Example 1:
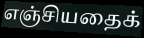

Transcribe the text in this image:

எஞ்சியதைக்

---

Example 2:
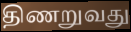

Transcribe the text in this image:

திணறுவது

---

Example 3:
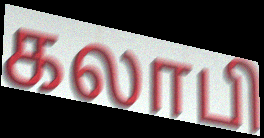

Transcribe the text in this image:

கலாபி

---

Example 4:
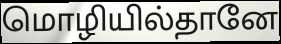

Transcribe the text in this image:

மொழியில்தானே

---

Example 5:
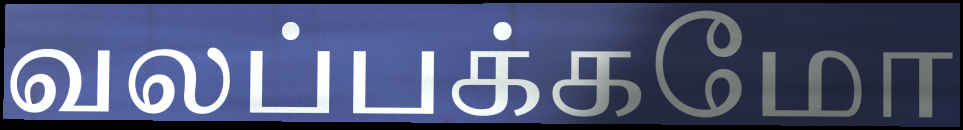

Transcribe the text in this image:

வலப்பக்கமோ